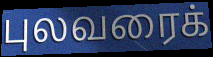
புலவரைக்